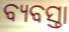
ବ୍ୟବସ୍ତା